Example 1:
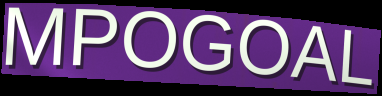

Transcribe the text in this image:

MPOGOAL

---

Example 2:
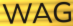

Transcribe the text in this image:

WAG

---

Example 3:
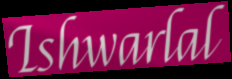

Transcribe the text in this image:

Ishwarlal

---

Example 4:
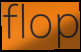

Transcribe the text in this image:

flop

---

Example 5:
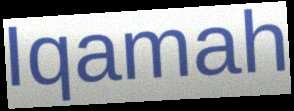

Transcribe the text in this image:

Iqamah